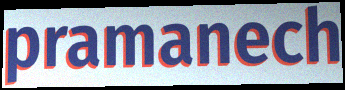
pramanech